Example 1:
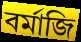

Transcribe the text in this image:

বর্মাজি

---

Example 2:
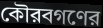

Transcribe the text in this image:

কৌরবগণের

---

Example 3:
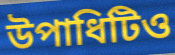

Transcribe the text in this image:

উপাধিটিও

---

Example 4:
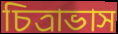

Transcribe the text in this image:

চিত্রাভাস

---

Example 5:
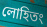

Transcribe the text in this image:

লোহিতং